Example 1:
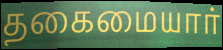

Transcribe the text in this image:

தகைமையார்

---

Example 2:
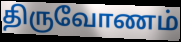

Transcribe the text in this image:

திருவோணம்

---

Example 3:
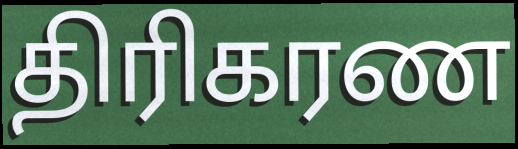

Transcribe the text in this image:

திரிகரண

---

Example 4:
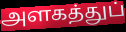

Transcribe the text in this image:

அளகத்துப்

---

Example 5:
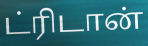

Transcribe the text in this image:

ட்ரிடான்